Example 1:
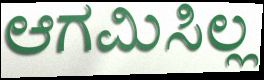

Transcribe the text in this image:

ಆಗಮಿಸಿಲ್ಲ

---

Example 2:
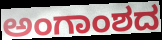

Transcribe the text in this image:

ಅಂಗಾಂಶದ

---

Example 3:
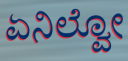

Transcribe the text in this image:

ಏನಿಲ್ವೋ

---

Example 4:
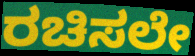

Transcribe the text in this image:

ರಚಿಸಲೇ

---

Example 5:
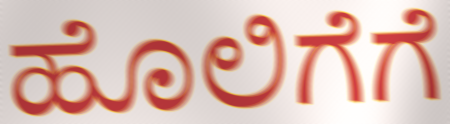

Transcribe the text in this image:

ಹೊಲಿಗೆಗೆ